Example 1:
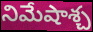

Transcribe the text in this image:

నిమేషాశ్చ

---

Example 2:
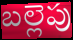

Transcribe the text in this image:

బల్లెపు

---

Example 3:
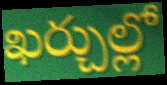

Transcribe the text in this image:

ఖర్చుల్లో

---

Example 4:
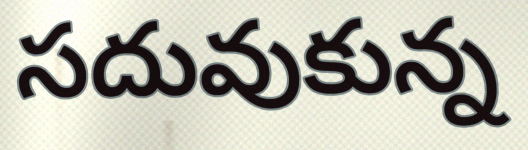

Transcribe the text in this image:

సదువుకున్న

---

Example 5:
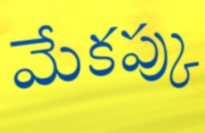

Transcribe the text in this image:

మేకప్కు